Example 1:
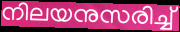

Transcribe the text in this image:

നിലയനുസരിച്ച്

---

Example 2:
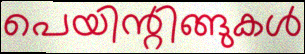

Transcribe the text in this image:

പെയിന്റിങ്ങുകൾ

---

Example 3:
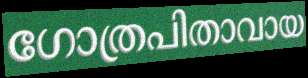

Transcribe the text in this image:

ഗോത്രപിതാവായ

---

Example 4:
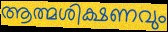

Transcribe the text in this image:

ആത്മശിക്ഷണവും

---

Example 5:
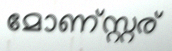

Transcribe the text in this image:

മോണ്സ്റ്റര്